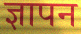
ज्ञापन